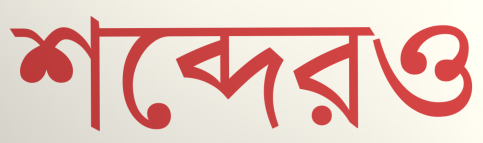
শব্দেরও